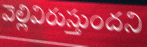
వెల్లివిరుస్తుందని